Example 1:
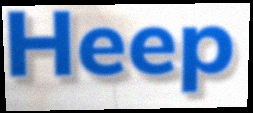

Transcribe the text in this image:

Heep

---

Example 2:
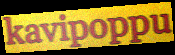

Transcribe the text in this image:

kavipoppu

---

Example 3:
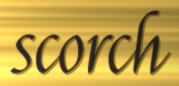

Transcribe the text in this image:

scorch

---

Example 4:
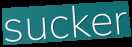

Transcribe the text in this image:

sucker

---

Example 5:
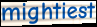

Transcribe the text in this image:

mightiest